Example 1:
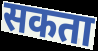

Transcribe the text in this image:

सकता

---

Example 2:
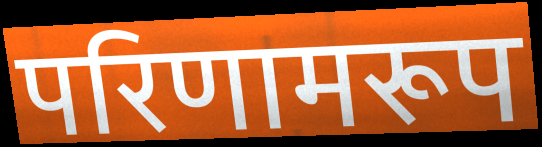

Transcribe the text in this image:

परिणामरूप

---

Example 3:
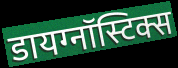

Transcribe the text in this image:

डायग्नॉस्टिक्स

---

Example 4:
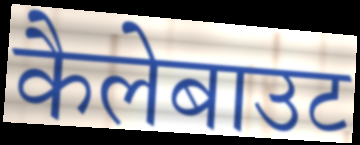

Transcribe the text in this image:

कैलेबाउट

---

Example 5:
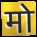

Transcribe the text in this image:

मो